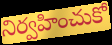
నిర్వహించుకో